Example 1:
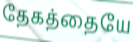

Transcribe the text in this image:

தேகத்தையே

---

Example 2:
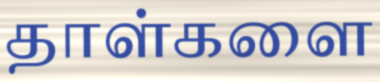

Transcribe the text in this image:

தாள்களை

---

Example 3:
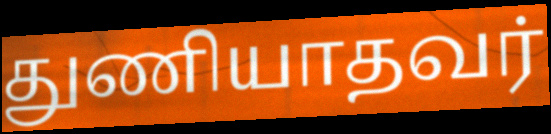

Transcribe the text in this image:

துணியாதவர்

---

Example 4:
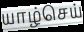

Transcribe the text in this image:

யாழ்செய்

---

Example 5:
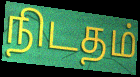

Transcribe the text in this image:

நிடதம்